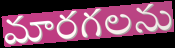
మారగలను